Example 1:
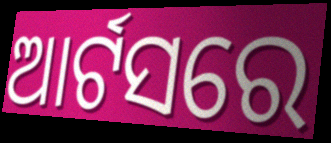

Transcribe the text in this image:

ଆର୍ଟସରେ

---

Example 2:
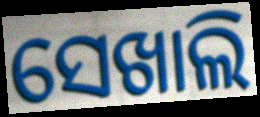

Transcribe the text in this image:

ସେଖାଲି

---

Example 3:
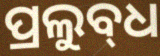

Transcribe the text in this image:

ପ୍ରଲୁବ୍‌ଧ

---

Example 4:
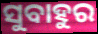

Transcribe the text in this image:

ସୁବାହୁର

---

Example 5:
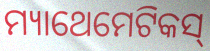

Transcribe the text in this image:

ମ୍ୟାଥେମେଟିକସ୍